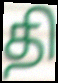
தி